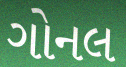
ગોનલ